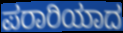
ಪರಾರಿಯಾದ